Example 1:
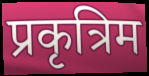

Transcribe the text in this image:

प्रकृत्रिम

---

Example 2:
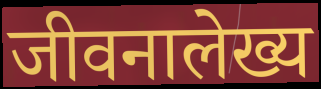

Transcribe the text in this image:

जीवनालेख्य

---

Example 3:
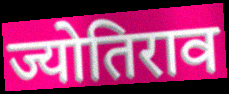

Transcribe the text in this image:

ज्‍योतिराव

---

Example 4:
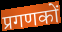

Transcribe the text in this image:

प्रगणकों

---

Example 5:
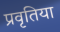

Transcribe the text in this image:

प्रवृतिया